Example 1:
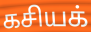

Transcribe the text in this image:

கசியக்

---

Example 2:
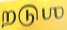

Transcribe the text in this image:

றடுஶ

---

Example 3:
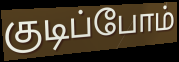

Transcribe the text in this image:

குடிப்போம்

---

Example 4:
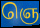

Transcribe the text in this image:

ஞெ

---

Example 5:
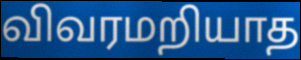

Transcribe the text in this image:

விவரமறியாத